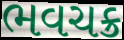
ભવચક્ર